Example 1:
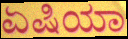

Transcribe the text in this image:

ಏಷಿಯಾ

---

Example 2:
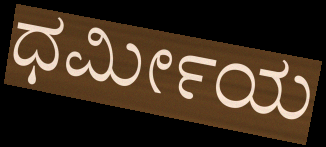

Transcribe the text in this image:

ಧರ್ಮೀಯ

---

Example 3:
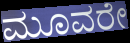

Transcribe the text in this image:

ಮೂವರೇ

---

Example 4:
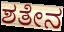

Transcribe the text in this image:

ಶತೇನ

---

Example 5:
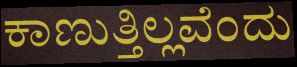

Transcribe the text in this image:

ಕಾಣುತ್ತಿಲ್ಲವೆಂದು